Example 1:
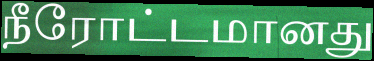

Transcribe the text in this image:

நீரோட்டமானது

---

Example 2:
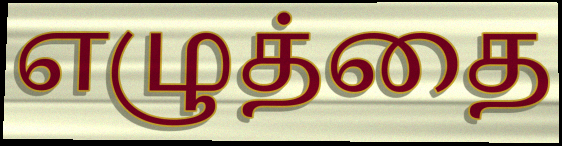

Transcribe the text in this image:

எழுத்தை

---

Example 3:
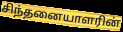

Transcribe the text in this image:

சிந்தனையாளரின்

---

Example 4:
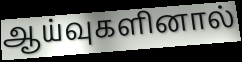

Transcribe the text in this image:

ஆய்வுகளினால்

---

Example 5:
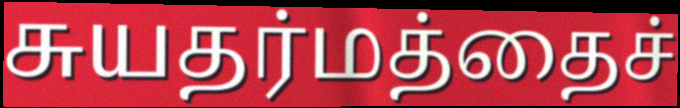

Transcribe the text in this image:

சுயதர்மத்தைச்